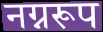
नग्नरूप